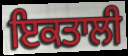
ਇਕਤਾਲੀ